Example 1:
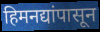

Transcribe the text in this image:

हिमनद्यांपासून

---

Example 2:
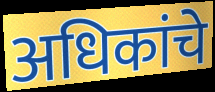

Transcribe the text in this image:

अधिकांचे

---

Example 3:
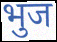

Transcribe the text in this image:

भुज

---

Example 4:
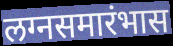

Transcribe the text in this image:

लग्नसमारंभास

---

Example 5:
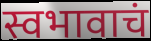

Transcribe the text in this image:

स्वभावाचं